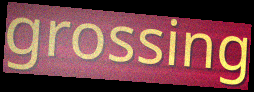
grossing